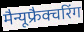
मैन्यूफ्रैक्चरिंग